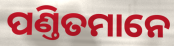
ପଣ୍ତିତମାନେ